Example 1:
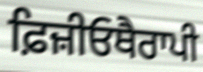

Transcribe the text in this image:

ਫ਼ਿਜ਼ੀਓਥੈਰਾਪੀ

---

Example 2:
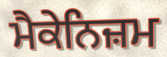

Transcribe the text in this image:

ਮੈਕੇਨਿਜ਼ਮ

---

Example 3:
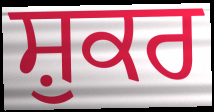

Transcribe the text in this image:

ਸ਼ੁਕਰ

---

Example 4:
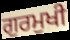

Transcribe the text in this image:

ਗੁਰਮੁਖੀ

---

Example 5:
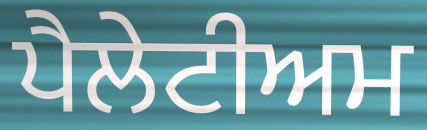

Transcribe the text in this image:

ਪੈਲੇਟੀਅਮ